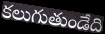
కలుగుతుండేది